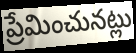
ప్రేమించునట్లు